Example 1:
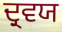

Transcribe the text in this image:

ਦ੍ਰਵਯ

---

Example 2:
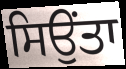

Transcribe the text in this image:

ਸਿਉਂਤਾ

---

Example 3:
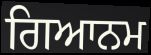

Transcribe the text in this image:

ਗਿਆਨਮ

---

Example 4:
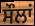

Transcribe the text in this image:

ਸੌਲਾਂ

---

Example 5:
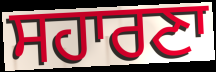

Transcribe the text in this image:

ਸਹਾਰਣਾ